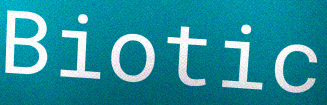
Biotic